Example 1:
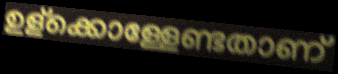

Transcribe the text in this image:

ഉള്ക്കൊള്ളേണ്ടതാണ്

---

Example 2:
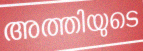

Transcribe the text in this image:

അത്തിയുടെ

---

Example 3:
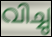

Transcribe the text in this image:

വിച്ചു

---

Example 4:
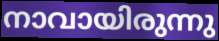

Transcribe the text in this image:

നാവായിരുന്നു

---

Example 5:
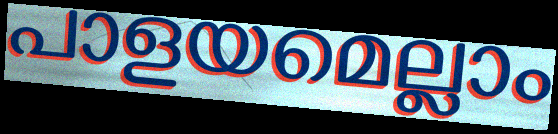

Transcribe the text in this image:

പാളയമെല്ലാം